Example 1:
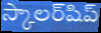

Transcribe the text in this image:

స్కాలర్‌షిప్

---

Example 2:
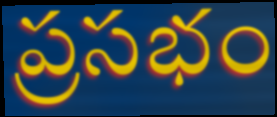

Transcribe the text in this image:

ప్రసభం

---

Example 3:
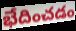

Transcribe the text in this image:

భేదించడం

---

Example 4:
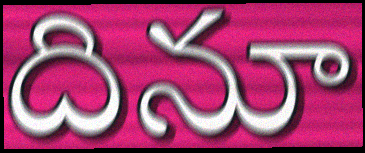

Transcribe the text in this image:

దినూ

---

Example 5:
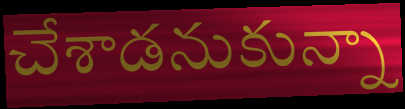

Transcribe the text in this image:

చేశాడనుకున్నా